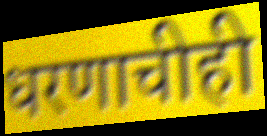
धरणाचीही